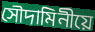
সৌদামিনীয়ে